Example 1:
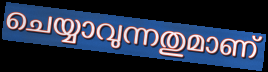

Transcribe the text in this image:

ചെയ്യാവുന്നതുമാണ്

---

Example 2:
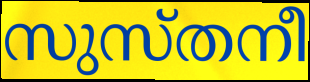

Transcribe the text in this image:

സുസ്തനീ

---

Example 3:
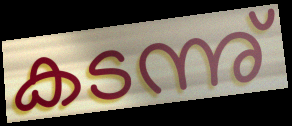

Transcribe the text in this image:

കടന്നു്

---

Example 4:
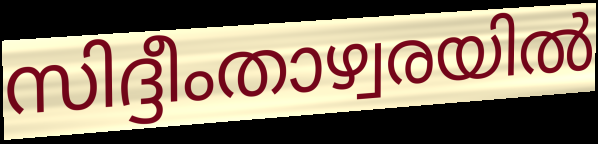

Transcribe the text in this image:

സിദ്ദീംതാഴ്വരയിൽ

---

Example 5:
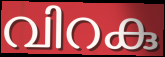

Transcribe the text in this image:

വിറകു